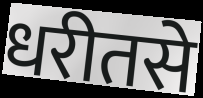
धरीतसे